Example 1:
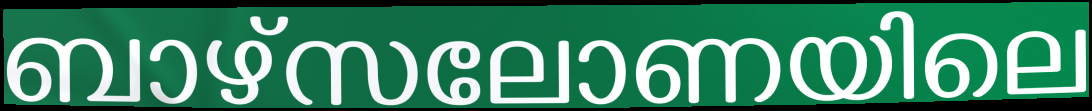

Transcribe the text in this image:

ബാഴ്സലോണയിലെ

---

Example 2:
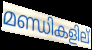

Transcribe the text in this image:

മണ്ഡികളില്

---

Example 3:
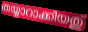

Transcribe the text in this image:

തയ്യാറാക്കിയതു്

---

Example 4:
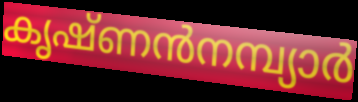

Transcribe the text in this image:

കൃഷ്ണൻനമ്പ്യാർ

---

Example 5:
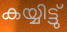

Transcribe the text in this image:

കയ്യിട്ടു്